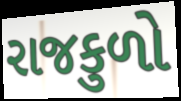
રાજકુળો